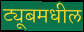
ट्यूबमधील